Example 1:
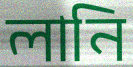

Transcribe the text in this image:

লানি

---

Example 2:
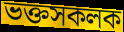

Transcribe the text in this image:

ভক্তসকলক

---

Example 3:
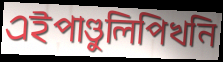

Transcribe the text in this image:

এইপাণ্ডুলিপিখনি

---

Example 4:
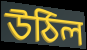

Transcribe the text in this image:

উঠিল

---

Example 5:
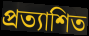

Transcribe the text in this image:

প্ৰত্যাশিত